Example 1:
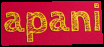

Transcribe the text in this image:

apani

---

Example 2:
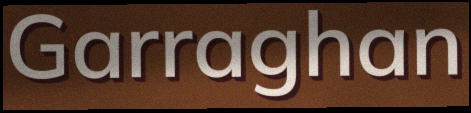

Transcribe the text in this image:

Garraghan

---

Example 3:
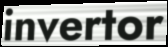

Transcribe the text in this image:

invertor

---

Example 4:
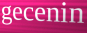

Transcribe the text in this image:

gecenin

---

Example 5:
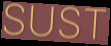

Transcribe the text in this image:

SUST